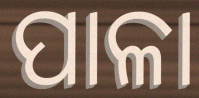
ପାଳା